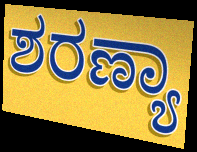
ಶರಣ್ಯಾ